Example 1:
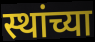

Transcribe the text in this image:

स्थांच्या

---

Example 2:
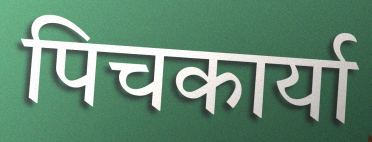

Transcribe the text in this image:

पिचकार्या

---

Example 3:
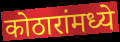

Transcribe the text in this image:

कोठारांमध्ये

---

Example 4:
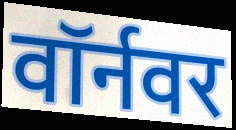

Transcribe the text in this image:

वॉर्नवर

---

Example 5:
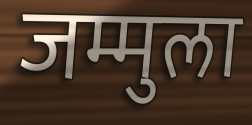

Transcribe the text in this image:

जम्मुला